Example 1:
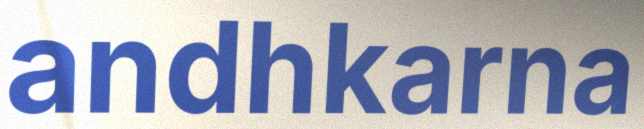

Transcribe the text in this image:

andhkarna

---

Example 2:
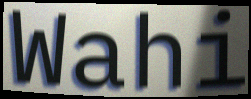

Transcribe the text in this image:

Wahi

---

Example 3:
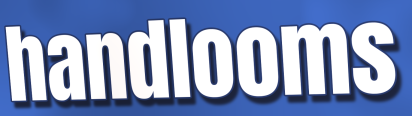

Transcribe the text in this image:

handlooms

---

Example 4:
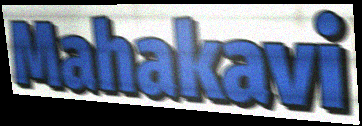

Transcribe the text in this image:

Mahakavi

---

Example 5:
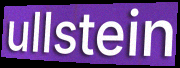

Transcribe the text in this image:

ullstein